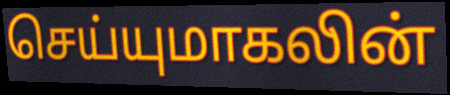
செய்யுமாகலின்